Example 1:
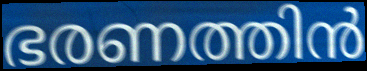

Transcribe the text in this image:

ഭരണത്തിൻ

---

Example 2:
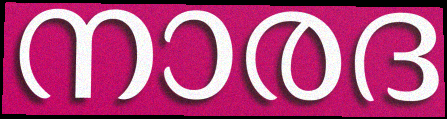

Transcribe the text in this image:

നാരദ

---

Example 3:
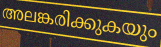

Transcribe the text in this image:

അലങ്കരിക്കുകയും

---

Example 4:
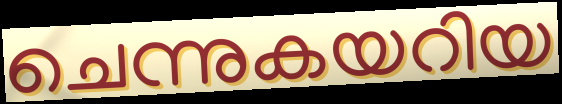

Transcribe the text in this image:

ചെന്നുകയറിയ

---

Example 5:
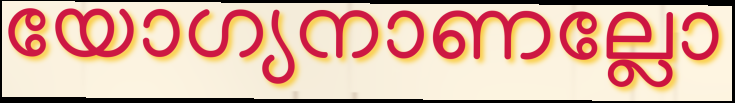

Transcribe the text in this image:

യോഗ്യനാണല്ലോ